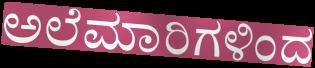
ಅಲೆಮಾರಿಗಳಿಂದ